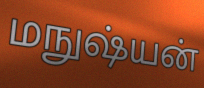
மநுஷ்யன்